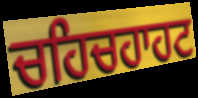
ਚਹਿਚਹਾਹਟ